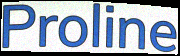
Proline